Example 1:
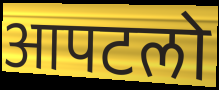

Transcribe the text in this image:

आपटलो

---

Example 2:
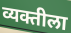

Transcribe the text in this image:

व्यक्तीला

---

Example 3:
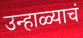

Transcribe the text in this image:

उन्हाळ्याचं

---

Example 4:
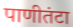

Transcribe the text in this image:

पाणीतंटा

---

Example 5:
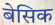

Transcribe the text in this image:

बेसिक